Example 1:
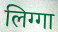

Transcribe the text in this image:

लिग्गा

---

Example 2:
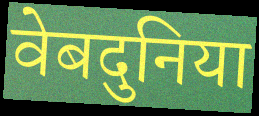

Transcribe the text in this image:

वेबदुनिया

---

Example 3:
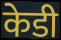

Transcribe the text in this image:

केडी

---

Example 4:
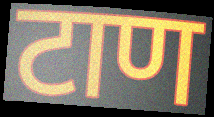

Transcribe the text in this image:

टाण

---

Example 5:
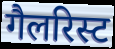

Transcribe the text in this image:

गैलरिस्ट